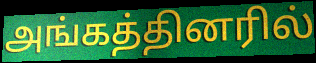
அங்கத்தினரில்